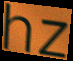
hz